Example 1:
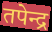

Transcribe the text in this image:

तपेन्द्र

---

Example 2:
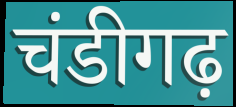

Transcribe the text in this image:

चंडीगढ़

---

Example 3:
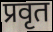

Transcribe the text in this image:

प्रवृत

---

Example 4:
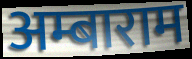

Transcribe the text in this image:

अम्बाराम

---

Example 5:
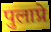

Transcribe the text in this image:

पुलाप्रे